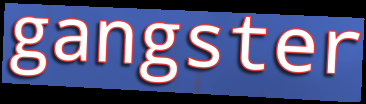
gangster